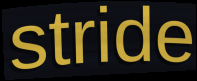
stride